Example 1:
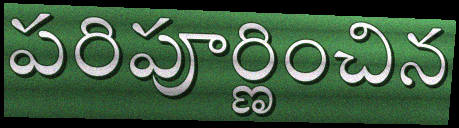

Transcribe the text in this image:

పరిపూర్ణించిన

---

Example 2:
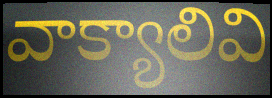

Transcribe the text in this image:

వాక్యాలివి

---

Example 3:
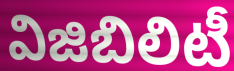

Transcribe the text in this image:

విజిబిలిటీ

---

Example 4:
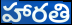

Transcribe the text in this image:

హారతి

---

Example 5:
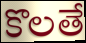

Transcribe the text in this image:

కొలతే